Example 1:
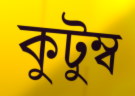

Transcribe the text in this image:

কুটুম্ব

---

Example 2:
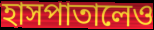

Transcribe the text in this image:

হাসপাতালেও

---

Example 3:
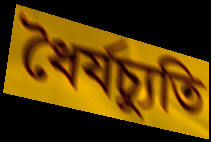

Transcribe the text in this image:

ধৈর্যচ্যুতি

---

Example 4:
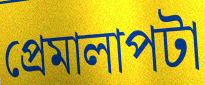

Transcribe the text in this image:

প্রেমালাপটা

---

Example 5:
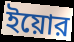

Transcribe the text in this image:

ইয়োর